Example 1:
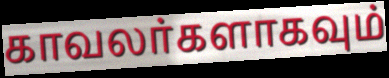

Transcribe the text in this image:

காவலர்களாகவும்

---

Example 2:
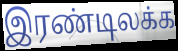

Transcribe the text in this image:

இரண்டிலக்க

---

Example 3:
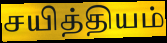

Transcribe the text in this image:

சயித்தியம்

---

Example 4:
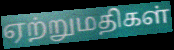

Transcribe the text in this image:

ஏற்றுமதிகள்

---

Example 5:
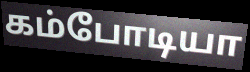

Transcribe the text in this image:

கம்போடியா